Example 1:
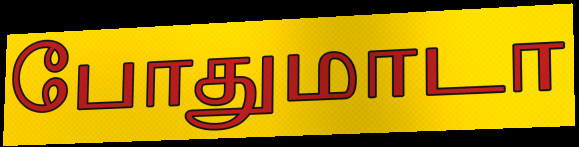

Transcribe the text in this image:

போதுமாடா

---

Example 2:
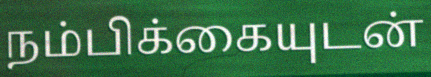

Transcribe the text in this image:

நம்பிக்கையுடன்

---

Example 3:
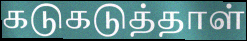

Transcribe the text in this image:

கடுகடுத்தாள்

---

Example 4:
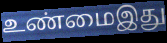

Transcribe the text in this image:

உண்மைஇது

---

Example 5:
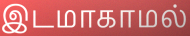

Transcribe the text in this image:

இடமாகாமல்